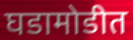
घडामोडीत